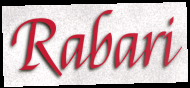
Rabari